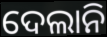
ଦେଲାନି